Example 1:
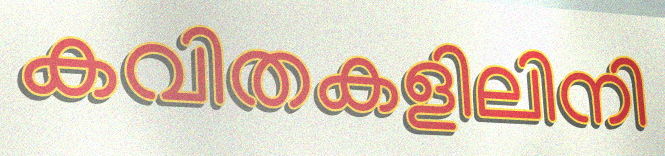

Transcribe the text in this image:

കവിതകളിലിനി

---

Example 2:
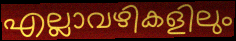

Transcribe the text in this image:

എല്ലാവഴികളിലും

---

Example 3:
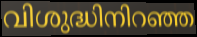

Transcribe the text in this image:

വിശുദ്ധിനിറഞ്ഞ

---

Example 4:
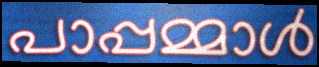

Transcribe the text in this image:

പാപ്പമ്മാൾ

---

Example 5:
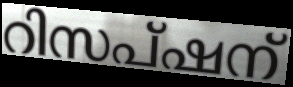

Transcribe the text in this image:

റിസപ്ഷന്